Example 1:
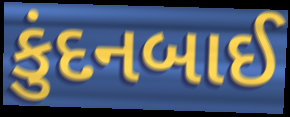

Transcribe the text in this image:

કુંદનબાઈ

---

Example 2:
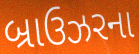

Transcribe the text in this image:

બ્રાઉઝરના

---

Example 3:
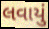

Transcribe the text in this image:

લવાયું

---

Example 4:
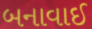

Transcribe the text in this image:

બનાવાઈ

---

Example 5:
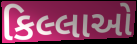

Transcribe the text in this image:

કિલ્લાઓ